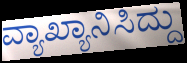
ವ್ಯಾಖ್ಯಾನಿಸಿದ್ದು